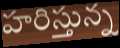
హరిస్తున్న